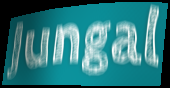
Jungal